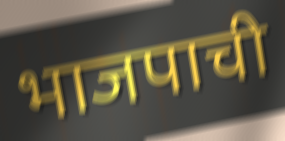
भाजपाची